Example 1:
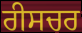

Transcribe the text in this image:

ਰੀਸਚਰ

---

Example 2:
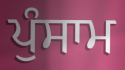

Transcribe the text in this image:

ਪੁੰਸਾਮ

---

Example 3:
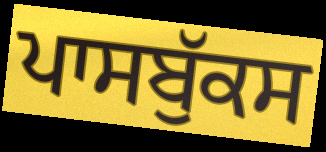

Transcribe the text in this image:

ਪਾਸਬੁੱਕਸ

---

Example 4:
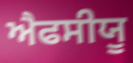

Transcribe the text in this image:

ਐਫਸੀਯੂ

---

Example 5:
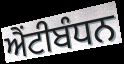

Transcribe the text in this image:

ਐਂਟੀਬੰਧਨ